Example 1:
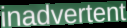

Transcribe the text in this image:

inadvertent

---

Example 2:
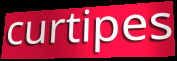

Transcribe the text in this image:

curtipes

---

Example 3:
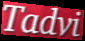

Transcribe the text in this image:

Tadvi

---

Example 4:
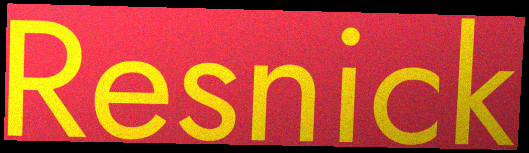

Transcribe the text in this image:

Resnick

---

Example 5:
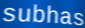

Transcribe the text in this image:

subhas